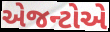
એજન્ટોએ